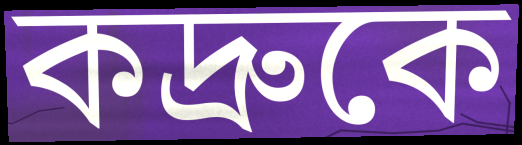
কদ্রুকে